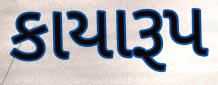
કાયારૂપ